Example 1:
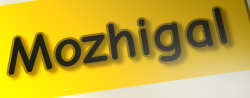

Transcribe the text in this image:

Mozhigal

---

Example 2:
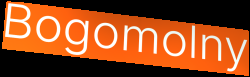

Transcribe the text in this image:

Bogomolny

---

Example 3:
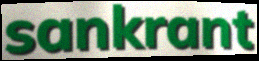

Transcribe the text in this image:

sankrant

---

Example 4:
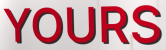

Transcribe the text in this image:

YOURS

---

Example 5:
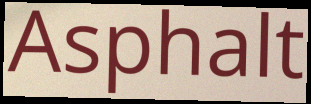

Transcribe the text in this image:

Asphalt